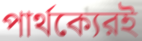
পার্থক্যেরই